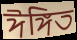
ঈঙ্গিত